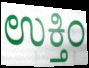
ಉಕ್ತಿಂ